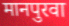
मानपुरवा